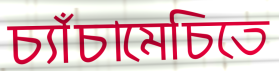
চ্যাঁচামেচিতে